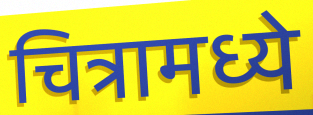
चित्रामध्ये